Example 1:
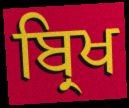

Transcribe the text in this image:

ਬ੍ਰਿਖ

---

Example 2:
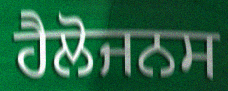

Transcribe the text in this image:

ਹੈਲੋਜਨਸ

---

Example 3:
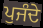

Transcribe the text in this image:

ਪੁਜੰਦੇ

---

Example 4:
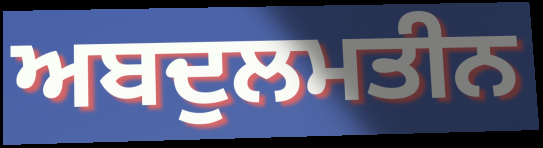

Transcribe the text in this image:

ਅਬਦੁਲਮਤੀਨ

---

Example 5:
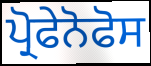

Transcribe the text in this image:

ਪ੍ਰੋਫੇਨੋਫੋਸ